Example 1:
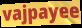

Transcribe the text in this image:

vajpayee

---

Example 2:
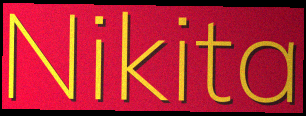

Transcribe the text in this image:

Nikita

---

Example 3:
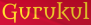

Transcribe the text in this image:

Gurukul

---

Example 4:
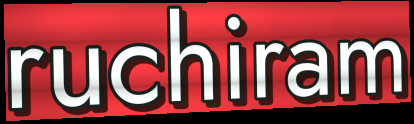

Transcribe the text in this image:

ruchiram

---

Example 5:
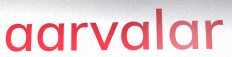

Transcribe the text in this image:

aarvalar